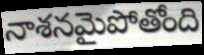
నాశనమైపోతోంది